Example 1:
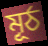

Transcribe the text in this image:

মূঠ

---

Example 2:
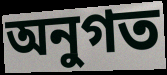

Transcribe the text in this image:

অনুগত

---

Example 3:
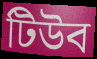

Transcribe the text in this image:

টিউব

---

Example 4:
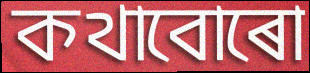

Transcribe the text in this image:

কথাবোৰো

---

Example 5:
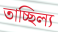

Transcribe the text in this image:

তাচ্ছিল্য